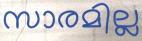
സാരമില്ല